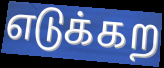
எடுக்கற